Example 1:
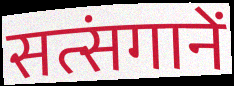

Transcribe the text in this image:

सत्संगानें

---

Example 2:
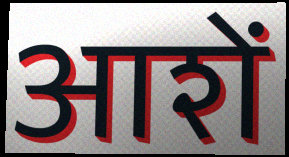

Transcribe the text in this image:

आशें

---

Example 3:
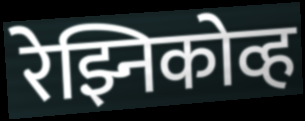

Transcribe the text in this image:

रेझ्निकोव्ह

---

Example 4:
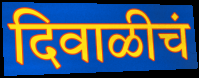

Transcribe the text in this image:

दिवाळीचं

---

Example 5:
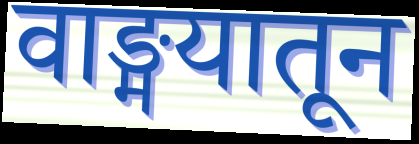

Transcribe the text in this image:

वाङ्मयातून